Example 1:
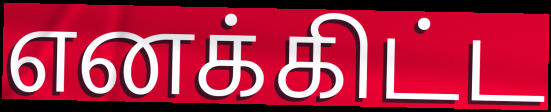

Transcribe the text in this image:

எனக்கிட்ட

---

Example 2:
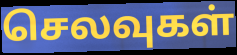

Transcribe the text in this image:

செலவுகள்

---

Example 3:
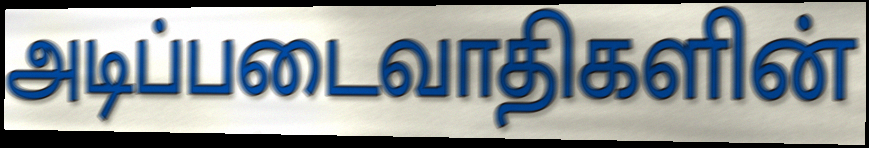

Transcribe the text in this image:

அடிப்படைவாதிகளின்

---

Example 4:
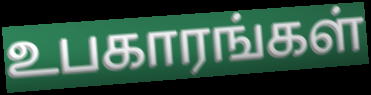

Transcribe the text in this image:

உபகாரங்கள்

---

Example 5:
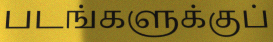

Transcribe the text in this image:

படங்களுக்குப்